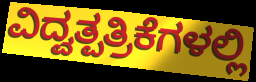
ವಿದ್ವತ್ಪತ್ರಿಕೆಗಳಲ್ಲಿ